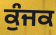
ਕੁੰਜਕ